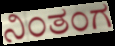
ನಿಂತಂಗ